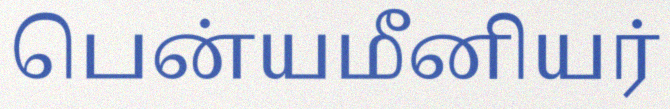
பென்யமீனியர்